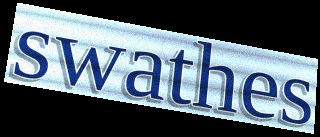
swathes